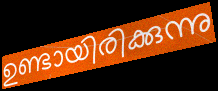
ഉണ്ടായിരിക്കുന്നു